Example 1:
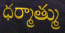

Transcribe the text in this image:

ధర్మాత్ము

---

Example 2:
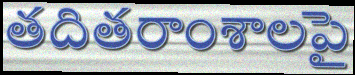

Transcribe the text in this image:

తదితరాంశాలపై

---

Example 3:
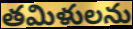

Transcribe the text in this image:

తమిళులను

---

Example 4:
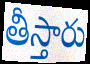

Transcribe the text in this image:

తీస్తారు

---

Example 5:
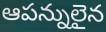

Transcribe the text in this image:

ఆపన్నులైన